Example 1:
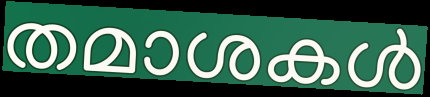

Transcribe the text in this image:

തമാശകൾ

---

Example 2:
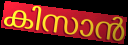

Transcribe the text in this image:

കിസാൻ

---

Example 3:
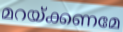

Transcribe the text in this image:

മറയ്ക്കണമേ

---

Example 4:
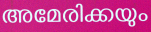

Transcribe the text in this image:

അമേരിക്കയും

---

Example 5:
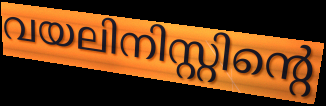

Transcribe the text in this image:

വയലിനിസ്റ്റിന്റെ